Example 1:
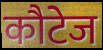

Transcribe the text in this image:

कौटेज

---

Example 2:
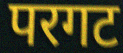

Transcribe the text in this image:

परगट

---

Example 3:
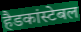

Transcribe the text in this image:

हैडकांस्टेबल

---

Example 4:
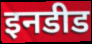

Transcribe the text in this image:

इनडीड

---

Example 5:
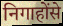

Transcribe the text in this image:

निगाहोंसे